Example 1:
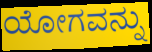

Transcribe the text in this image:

ಯೋಗವನ್ನು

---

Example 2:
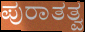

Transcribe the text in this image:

ಪುರಾತತ್ವ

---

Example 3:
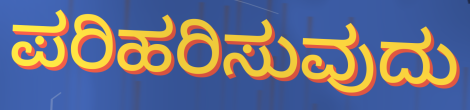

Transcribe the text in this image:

ಪರಿಹರಿಸುವುದು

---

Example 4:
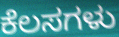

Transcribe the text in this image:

ಕೆಲಸಗಳು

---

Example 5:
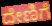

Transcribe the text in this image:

ದೇಣಿಗೆ